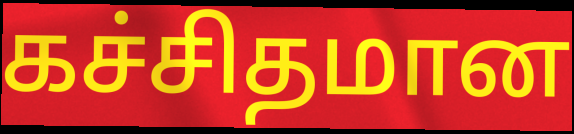
கச்சிதமான